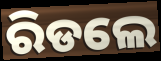
ରିଡଲେ